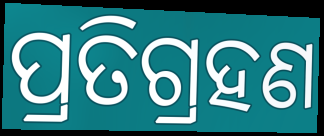
ପ୍ରତିଗ୍ରହଣ